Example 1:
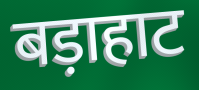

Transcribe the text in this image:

बड़ाहाट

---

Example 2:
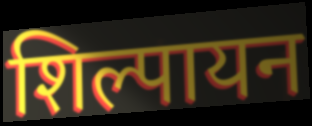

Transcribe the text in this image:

शिल्पायन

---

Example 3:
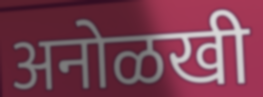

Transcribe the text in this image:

अनोळखी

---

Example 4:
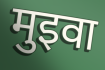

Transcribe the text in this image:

मुइवा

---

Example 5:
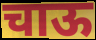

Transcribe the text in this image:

चाऊ